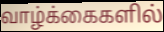
வாழ்க்கைகளில்